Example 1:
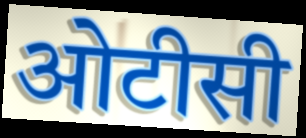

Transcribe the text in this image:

ओटीसी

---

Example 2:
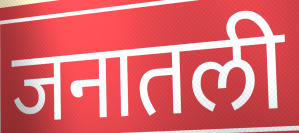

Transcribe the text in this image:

जनातली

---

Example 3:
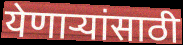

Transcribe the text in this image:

येणाऱ्यांसाठी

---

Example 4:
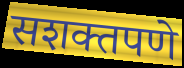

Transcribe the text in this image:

सशक्तपणे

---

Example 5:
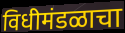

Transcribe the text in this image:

विधीमंडळाचा